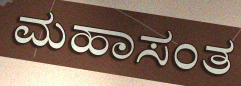
ಮಹಾಸಂತ